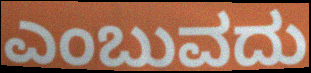
ಎಂಬುವದು